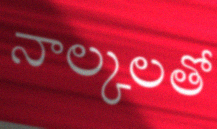
నాల్కలతో